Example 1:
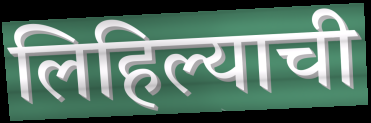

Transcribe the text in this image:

लिहिल्याची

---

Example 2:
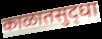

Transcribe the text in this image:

काळातसुद्धा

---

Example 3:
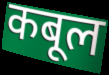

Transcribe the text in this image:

कबूल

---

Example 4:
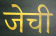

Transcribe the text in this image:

जेची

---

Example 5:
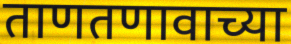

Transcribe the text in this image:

ताणतणावाच्या